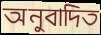
অনুবাদিত